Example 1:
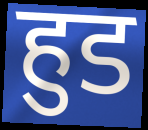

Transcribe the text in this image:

हुड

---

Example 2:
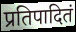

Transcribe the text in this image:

प्रतिपादितं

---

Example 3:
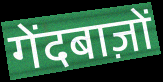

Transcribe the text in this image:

गेंदबाज़ों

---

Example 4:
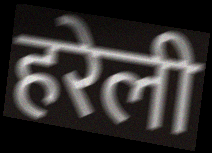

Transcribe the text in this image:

हरेली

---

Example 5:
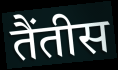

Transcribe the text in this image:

तैंतीस